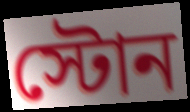
স্টোন